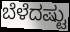
ಬೆಳೆದಷ್ಟು